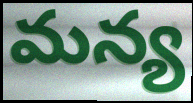
మన్య